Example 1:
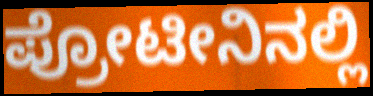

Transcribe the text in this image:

ಪ್ರೋಟೀನಿನಲ್ಲಿ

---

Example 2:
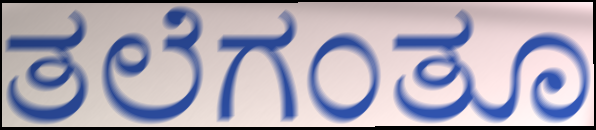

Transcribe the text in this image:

ತಲೆಗಂತೂ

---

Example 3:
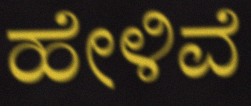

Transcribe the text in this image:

ಹೇಳಿವೆ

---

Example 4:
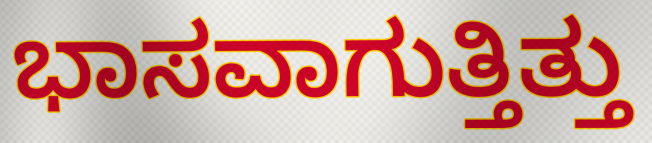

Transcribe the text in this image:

ಭಾಸವಾಗುತ್ತಿತ್ತು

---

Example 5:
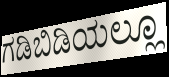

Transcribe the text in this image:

ಗಡಿಬಿಡಿಯಲ್ಲೂ